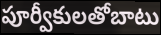
పూర్వీకులతోబాటు